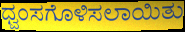
ಧ್ವಂಸಗೊಳಿಸಲಾಯಿತು